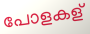
പോളകള്